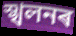
স্খলনৰ